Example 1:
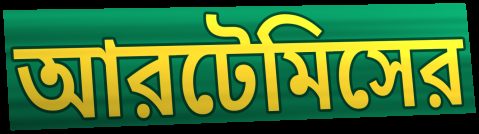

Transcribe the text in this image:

আরটেমিসের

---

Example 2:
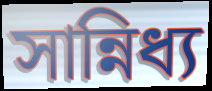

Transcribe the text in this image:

সান্নিধ্য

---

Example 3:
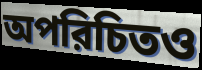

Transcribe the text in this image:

অপরিচিতও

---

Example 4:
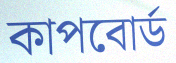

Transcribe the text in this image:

কাপবোর্ড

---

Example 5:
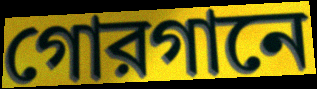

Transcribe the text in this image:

গোরগানে